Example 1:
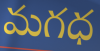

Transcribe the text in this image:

మగధ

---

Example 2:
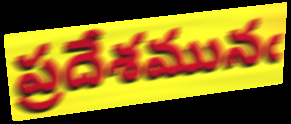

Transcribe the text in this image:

ప్రదేశమునఁ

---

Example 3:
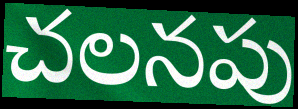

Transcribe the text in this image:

చలనపు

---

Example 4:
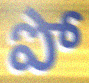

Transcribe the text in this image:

పో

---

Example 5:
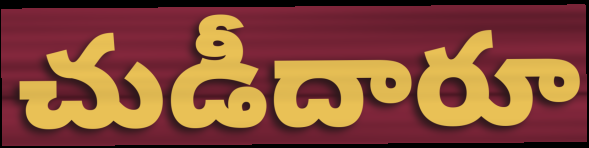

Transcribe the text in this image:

చుడీదారూ